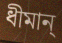
ধীমান্